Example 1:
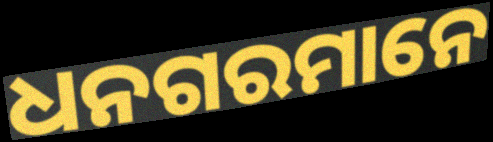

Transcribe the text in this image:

ଧନଗରମାନେ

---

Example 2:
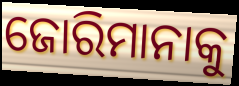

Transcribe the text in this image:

ଜୋରିମାନାକୁ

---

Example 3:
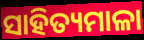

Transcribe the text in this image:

ସାହିତ୍ୟମାଳା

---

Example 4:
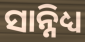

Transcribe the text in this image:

ସାନ୍ନିଧ୍ୟ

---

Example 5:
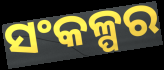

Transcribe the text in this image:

ସଂକଳ୍ପର